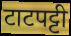
टाटपट्टी